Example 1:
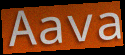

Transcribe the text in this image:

Aava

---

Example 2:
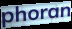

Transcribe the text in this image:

phoran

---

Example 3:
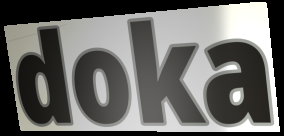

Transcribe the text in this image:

doka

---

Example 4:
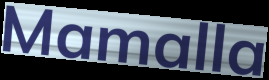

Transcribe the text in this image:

Mamalla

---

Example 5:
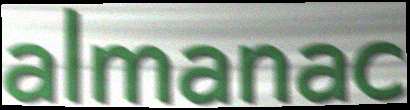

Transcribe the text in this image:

almanac